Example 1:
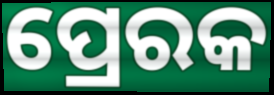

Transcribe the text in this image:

ପ୍ରେରକ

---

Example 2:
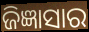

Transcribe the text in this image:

ଜିଜ୍ଞାସାର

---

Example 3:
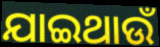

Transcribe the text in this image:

ଯାଇଥାଉଁ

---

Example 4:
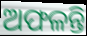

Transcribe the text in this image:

ଅଫଳନ୍ତି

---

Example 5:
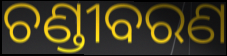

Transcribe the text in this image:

ଚଣ୍ଡୀବରଣ